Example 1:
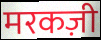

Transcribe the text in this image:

मरकज़ी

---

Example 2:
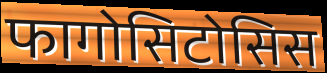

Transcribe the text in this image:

फागोसिटोसिस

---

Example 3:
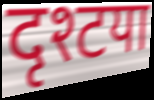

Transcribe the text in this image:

दृश्टया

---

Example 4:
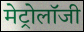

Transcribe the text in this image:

मेट्रोलॉजी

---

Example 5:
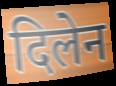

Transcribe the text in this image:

दिलेन